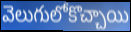
వెలుగులోకొచ్చాయి